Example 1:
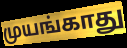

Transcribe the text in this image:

முயங்காது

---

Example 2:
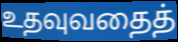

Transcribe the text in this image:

உதவுவதைத்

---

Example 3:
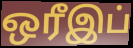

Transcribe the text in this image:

ஒரீஇப்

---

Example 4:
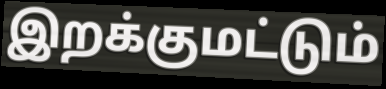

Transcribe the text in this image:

இறக்குமட்டும்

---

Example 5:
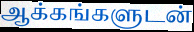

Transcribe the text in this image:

ஆக்கங்களுடன்